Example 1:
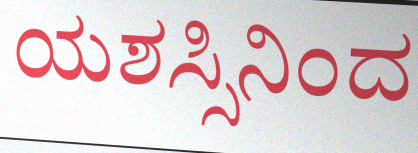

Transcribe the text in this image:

ಯಶಸ್ಸಿನಿಂದ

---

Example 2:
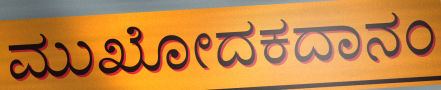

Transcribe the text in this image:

ಮುಖೋದಕದಾನಂ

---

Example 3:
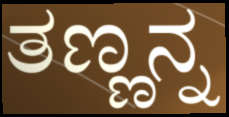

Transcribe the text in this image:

ತಣ್ಣನ್ನ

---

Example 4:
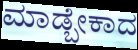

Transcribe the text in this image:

ಮಾಡ್ಬೇಕಾದ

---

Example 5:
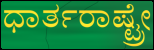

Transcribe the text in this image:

ಧಾರ್ತರಾಷ್ಟ್ರೇ